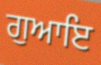
ਗੁਆਇ